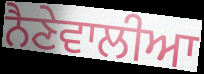
ਨੈਣੇਵਾਲੀਆ